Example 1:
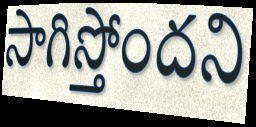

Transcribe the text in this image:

సాగిస్తోందని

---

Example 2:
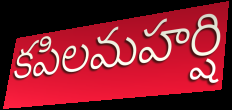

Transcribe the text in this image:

కపిలమహర్షి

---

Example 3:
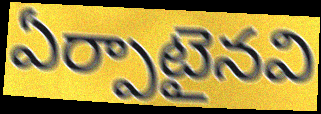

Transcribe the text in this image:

ఏర్పాటైనవి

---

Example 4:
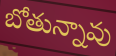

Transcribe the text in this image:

బోతున్నావు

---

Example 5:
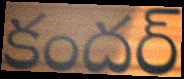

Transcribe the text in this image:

కందర్